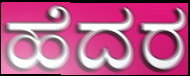
ಹೆದರ